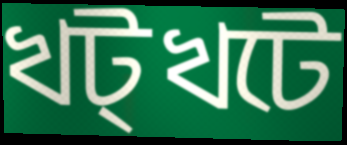
খট্‌খটে